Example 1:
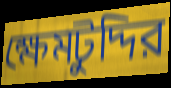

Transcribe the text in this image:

ক্ষেমটুদ্দির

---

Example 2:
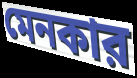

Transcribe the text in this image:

মেনকার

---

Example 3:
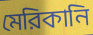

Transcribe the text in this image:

মেরিকানি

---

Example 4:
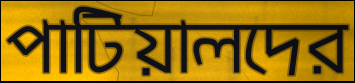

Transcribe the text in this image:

পাটিয়ালদের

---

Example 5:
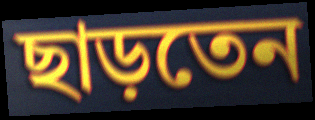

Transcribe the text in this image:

ছাড়তেন